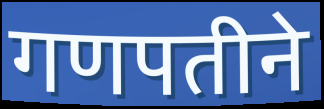
गणपतीने